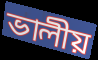
ভালীয়